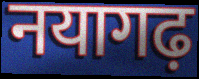
नयागढ़